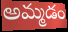
అమ్మడం